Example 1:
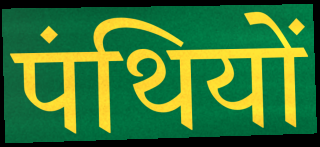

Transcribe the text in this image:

पंथियों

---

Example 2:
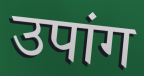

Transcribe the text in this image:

उपांग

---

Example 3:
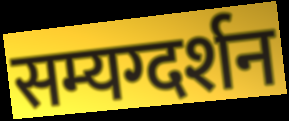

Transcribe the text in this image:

सम्‍यग्‍दर्शन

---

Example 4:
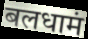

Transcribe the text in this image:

बलधामं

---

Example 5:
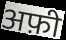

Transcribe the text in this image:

अफ़ी